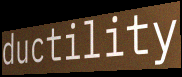
ductility